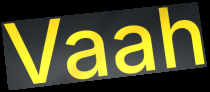
Vaah